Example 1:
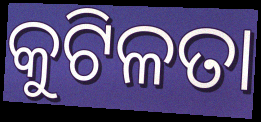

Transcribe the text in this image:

କୁଟିଳତା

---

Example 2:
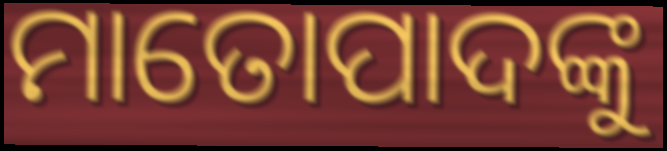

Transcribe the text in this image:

ମାତୋପାଦଙ୍କୁ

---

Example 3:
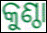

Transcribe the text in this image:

କୁଣ୍ଠା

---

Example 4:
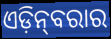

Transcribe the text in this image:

ଏଡ଼ିନ୍‍ବରାର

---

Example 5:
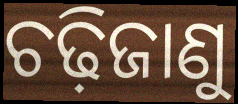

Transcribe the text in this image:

ଚଢ଼ିଜାଣୁ